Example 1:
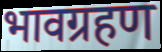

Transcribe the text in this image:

भावग्रहण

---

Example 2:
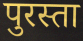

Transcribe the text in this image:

पुरस्ता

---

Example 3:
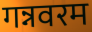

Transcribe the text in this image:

गन्नवरम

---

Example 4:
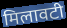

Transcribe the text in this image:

मिलावटी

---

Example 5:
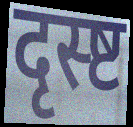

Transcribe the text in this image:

दृस्ष्ट